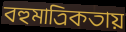
বহুমাত্রিকতায়